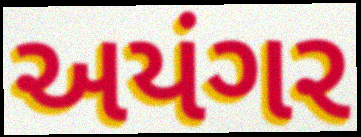
અયંગર